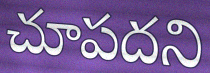
చూపదని